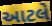
આટલે